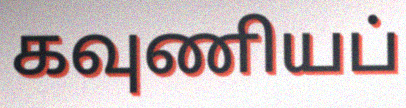
கவுணியப்